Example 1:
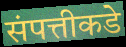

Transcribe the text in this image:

संपत्तीकडे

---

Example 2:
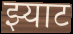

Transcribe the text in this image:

झ्याट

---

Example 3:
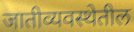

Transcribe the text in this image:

जातीव्यवस्थेतील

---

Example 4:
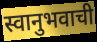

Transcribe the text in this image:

स्वानुभवाची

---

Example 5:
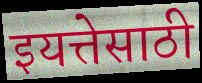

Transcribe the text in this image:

इयत्तेसाठी